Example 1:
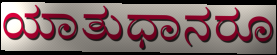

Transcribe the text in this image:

ಯಾತುಧಾನರೂ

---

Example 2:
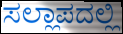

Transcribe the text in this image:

ಸಲ್ಲಾಪದಲ್ಲಿ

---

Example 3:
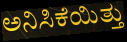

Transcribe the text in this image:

ಅನಿಸಿಕೆಯಿತ್ತು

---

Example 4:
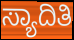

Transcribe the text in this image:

ಸ್ಯಾದಿತಿ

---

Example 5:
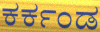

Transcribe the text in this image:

ಕರ್ಕಂಡ